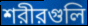
শরীরগুলি